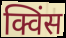
क्विंस